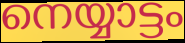
നെയ്യാട്ടം